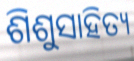
ଶିଶୁସାହିତ୍ୟ